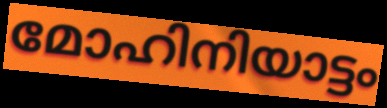
മോഹിനിയാട്ടം